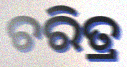
ଚରିତ୍ର